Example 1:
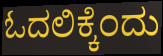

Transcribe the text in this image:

ಓದಲಿಕ್ಕೆಂದು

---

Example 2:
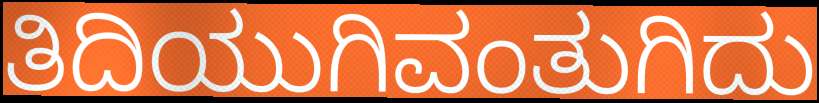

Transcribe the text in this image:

ತಿದಿಯುಗಿವಂತುಗಿದು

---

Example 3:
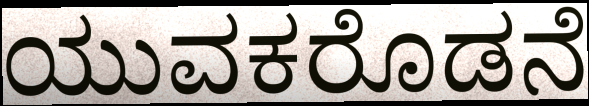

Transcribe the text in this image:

ಯುವಕರೊಡನೆ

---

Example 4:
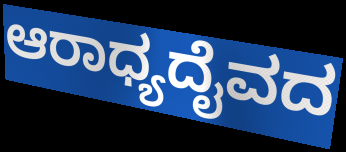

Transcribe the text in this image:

ಆರಾಧ್ಯದೈವದ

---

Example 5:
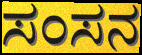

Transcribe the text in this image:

ಸಂಸನ